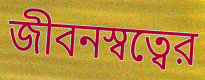
জীবনস্বত্বের